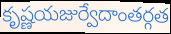
కృష్ణయజుర్వేదాంతర్గత